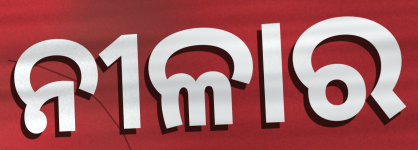
ନୀଳାର